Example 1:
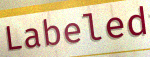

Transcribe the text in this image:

Labeled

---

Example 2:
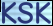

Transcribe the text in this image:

KSK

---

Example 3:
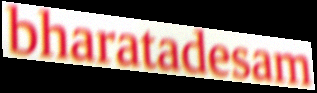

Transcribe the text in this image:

bharatadesam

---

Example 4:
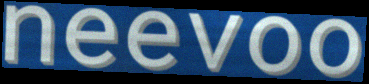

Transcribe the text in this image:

neevoo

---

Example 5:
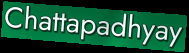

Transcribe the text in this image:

Chattapadhyay